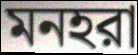
মনহরা